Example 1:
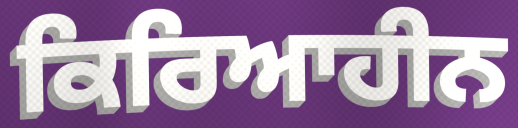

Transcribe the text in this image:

ਕਿਰਿਆਹੀਨ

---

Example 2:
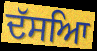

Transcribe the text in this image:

ਦੱਸਆਿ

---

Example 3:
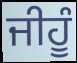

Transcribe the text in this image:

ਜੀਹੂੰ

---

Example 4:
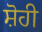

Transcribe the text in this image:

ਸ਼ੋਹੀ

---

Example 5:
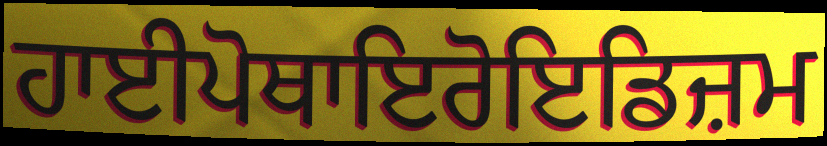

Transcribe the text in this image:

ਹਾਈਪੋਥਾਇਰੋਇਡਿਜ਼ਮ